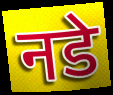
नडे